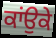
ਕਾਂਉਕੇ